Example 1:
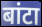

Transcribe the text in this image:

बांटा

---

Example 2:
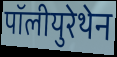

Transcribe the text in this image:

पॉलीयुरेथेन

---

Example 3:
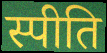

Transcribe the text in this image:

स्पीति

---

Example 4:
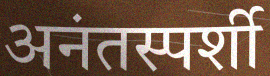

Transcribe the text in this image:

अनंतस्पर्शी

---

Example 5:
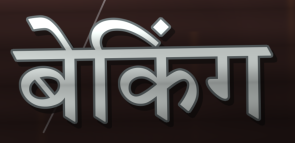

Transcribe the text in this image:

बेकिंग